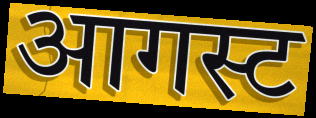
आगस्ट